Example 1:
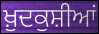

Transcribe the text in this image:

ਖ਼ੁਦਕੁਸ਼ੀਆਂ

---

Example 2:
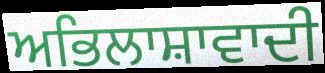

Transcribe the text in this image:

ਅਭਿਲਾਸ਼ਾਵਾਦੀ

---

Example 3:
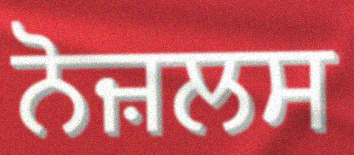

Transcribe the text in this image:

ਨੋਜ਼ਲਸ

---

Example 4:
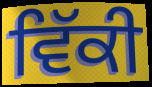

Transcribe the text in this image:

ਵਿੱਕੀ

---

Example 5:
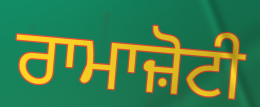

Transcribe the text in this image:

ਰਾਮਾਜ਼ੋਟੀ